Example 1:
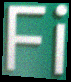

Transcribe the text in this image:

Fi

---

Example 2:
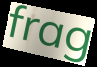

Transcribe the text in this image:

frag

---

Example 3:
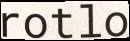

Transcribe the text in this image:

rotlo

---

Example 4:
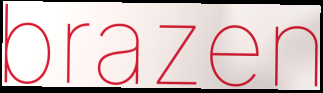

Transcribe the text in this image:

brazen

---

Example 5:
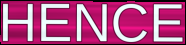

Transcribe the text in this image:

HENCE